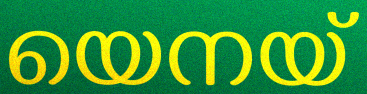
യെനയ്